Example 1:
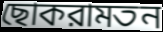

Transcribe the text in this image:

ছোকরামতন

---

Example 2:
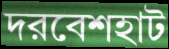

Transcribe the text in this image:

দরবেশহাট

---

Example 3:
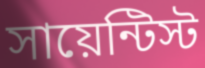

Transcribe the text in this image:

সায়েন্টিস্ট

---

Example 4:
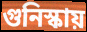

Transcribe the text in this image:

গুনিস্কায়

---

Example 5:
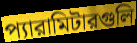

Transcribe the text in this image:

প্যারামিটারগুলি